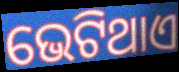
ଭେଟିଥାଏ